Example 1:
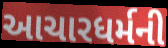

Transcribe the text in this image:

આચારધર્મની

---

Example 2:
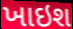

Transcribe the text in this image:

ખાઇશ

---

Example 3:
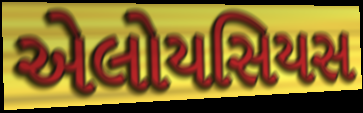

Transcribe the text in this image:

એલોયસિયસ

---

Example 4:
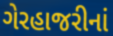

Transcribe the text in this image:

ગેરહાજરીનાં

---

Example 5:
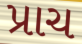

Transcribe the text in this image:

પ્રાચ